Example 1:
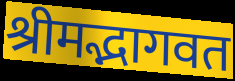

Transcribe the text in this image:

श्रीमद्भागवत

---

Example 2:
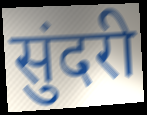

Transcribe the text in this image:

सुंदरी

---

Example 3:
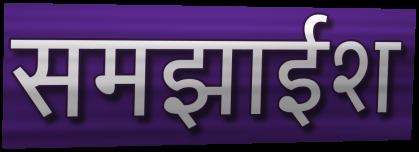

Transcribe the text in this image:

समझाईश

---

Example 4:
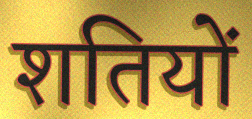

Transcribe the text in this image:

शतियों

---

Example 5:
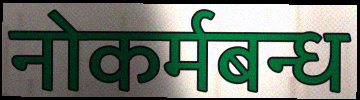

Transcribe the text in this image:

नोकर्मबन्ध